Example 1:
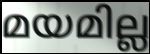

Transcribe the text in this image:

മയമില്ല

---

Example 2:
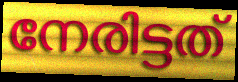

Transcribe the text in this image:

നേരിട്ടത്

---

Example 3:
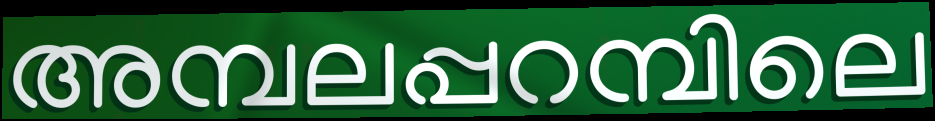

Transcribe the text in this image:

അമ്പലപ്പറമ്പിലെ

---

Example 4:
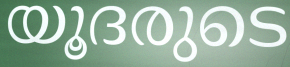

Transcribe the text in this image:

യൂദരുടെ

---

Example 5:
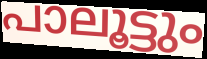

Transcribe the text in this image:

പാലൂട്ടും